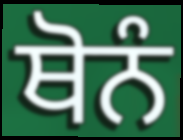
ਥੋਨੰ